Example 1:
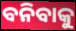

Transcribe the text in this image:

ବନିବାକୁ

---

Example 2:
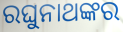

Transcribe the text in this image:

ରଘୁନାଥଙ୍କର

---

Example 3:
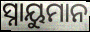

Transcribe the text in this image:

ସ୍ନାୟୁମାନ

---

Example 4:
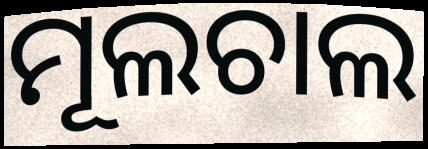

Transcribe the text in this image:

ମୂଲଚାଲ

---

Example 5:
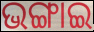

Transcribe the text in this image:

ଭଙ୍ଗାଇ